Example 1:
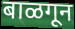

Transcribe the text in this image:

बाळगून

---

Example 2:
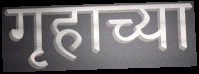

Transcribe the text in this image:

गृहाच्या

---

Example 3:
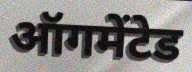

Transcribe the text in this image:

ऑगमेंटेड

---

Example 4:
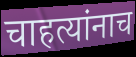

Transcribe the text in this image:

चाहत्यांनाच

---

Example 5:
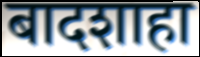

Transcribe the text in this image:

बादशाहा